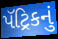
પૅટ્રિકનું